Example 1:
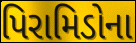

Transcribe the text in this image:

પિરામિડોના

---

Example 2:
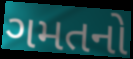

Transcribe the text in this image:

ગમતનો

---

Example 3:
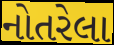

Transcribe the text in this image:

નોતરેલા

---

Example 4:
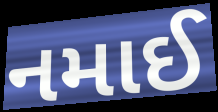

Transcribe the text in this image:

નમાઈ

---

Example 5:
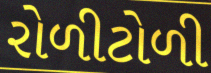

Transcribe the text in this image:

રોળીટોળી